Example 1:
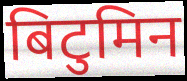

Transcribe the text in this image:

बिटुमिन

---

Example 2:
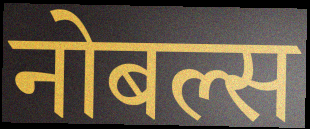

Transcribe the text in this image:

नोबल्स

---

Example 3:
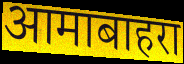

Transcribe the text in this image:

आमाबाहरा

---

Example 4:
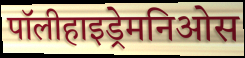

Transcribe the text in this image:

पॉलीहाइड्रेमनिओस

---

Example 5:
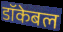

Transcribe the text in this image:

डॉकेबल